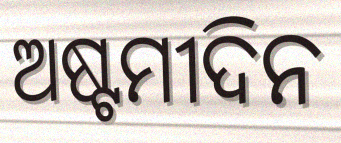
ଅଷ୍ଟମୀଦିନ